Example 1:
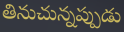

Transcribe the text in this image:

తినుచున్నప్పుడు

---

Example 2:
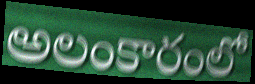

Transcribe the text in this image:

అలంకారంలో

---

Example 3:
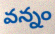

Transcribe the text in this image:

వన్నం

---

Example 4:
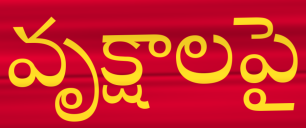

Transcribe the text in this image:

వృక్షాలపై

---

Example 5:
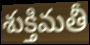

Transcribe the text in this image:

శుక్తిమతీ